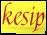
kesip